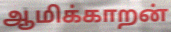
ஆமிக்காறன்